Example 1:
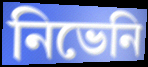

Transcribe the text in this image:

নিভেনি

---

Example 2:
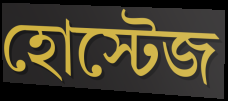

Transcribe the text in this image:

হোস্টেজ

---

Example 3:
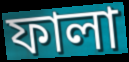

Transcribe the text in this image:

ফালা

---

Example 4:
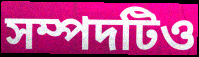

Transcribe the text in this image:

সম্পদটিও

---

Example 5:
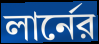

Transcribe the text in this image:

লার্নের